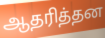
ஆதரித்தன